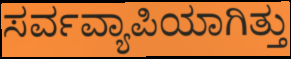
ಸರ್ವವ್ಯಾಪಿಯಾಗಿತ್ತು